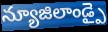
న్యూజిలాండ్పై